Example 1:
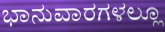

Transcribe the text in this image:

ಭಾನುವಾರಗಳಲ್ಲೂ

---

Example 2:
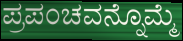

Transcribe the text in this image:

ಪ್ರಪಂಚವನ್ನೊಮ್ಮೆ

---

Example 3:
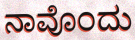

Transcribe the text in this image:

ನಾವೊಂದು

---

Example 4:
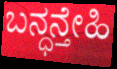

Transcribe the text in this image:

ಬನ್ಧನ್ತೇಹಿ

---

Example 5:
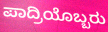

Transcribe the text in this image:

ಪಾದ್ರಿಯೊಬ್ಬರು